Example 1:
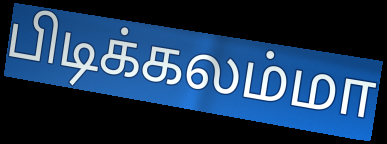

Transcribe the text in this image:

பிடிக்கலம்மா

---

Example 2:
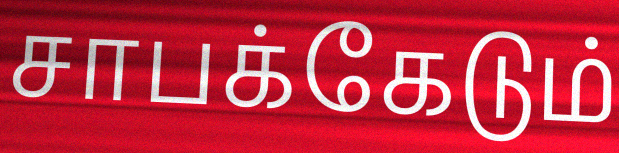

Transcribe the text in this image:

சாபக்கேடும்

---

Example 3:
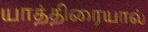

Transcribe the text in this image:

யாத்திரையால்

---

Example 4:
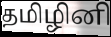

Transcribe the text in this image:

தமிழினி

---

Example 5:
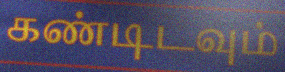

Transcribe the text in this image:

கண்டிடவும்